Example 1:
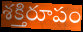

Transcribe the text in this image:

శక్తిరూపం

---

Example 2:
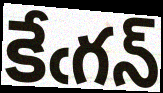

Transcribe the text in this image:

కేఁగన్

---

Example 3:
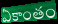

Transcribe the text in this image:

ఏకాంతం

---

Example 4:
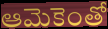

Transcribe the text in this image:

ఆమెకెంతో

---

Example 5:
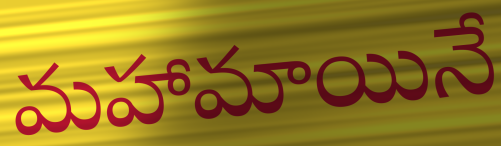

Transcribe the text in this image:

మహామాయినే